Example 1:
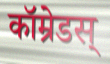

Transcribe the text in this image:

कॉम्रेडस्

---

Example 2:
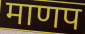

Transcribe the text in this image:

माणप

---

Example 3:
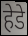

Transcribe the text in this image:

हेडे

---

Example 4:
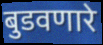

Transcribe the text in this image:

बुडवणारे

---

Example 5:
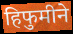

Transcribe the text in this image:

हिफुमीने